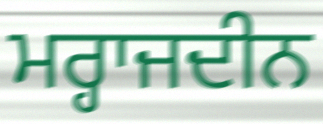
ਮਰ੍ਹਾਜਦੀਨ